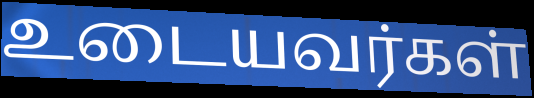
உடையவர்கள்